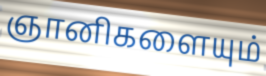
ஞானிகளையும்